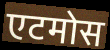
एटमोस